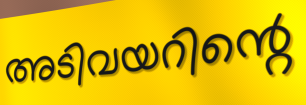
അടിവയറിന്റെ